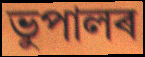
ভুপালৰ